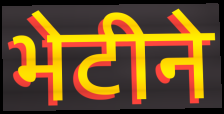
भेटीने